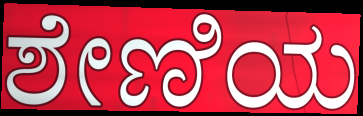
ಶೇಣಿಯ